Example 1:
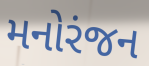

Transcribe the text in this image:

મનોરંજન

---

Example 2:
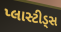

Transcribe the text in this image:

પ્લાસ્ટીડ્સ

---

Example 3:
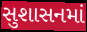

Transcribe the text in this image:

સુશાસનમાં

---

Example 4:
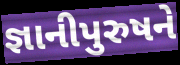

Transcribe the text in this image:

જ્ઞાનીપુરુષને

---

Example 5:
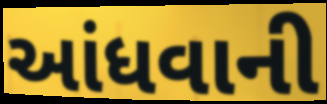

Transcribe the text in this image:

આંધવાની